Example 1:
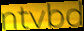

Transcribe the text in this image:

ntvbd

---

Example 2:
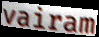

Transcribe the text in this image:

vairam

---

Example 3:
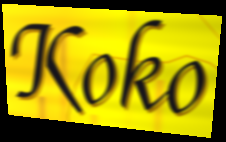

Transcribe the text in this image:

Koko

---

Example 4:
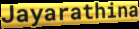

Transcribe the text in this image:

Jayarathina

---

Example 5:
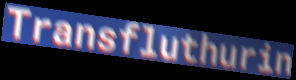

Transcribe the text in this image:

Transfluthurin